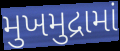
મુખમુદ્રામાં